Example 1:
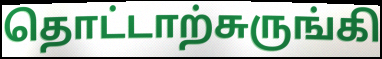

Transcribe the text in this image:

தொட்டாற்சுருங்கி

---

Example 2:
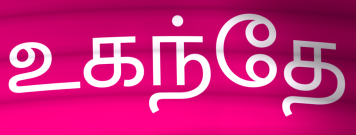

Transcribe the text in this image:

உகந்தே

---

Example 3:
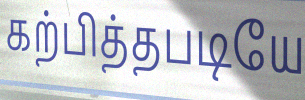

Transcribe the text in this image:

கற்பித்தபடியே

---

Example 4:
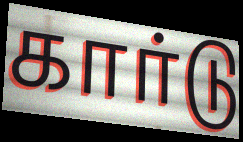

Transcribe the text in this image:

கார்டு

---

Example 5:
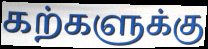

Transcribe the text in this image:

கற்களுக்கு